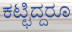
ಕಟ್ಟಿದ್ದರೂ